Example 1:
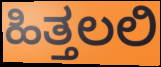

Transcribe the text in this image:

ಹಿತ್ತಲಲಿ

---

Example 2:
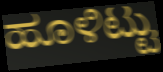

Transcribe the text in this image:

ಹೂಳಿಟ್ಟು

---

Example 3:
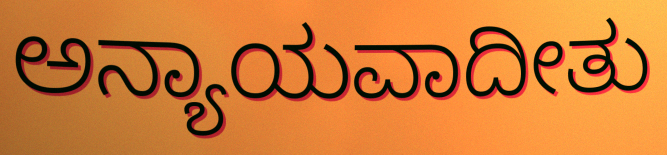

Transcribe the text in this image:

ಅನ್ಯಾಯವಾದೀತು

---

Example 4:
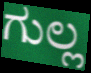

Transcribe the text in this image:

ಗುಲ್ಲ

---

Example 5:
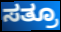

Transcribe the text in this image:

ಸತ್ರೂ